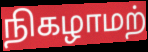
நிகழாமற்